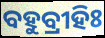
ବହୁବ୍ରୀହିଃ